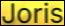
Joris